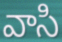
వాసి